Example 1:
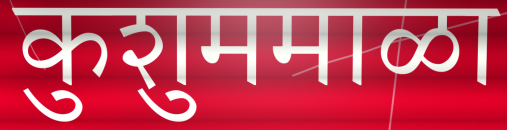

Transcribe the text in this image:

कुशुममाळा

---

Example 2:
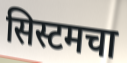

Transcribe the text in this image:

सिस्टमचा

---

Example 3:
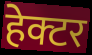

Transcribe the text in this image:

हेक्‍टर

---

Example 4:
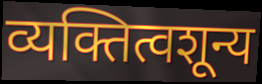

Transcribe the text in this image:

व्यक्तित्वशून्य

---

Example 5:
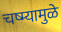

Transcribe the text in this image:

चष्म्यामुळे